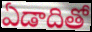
ఏడాదితో